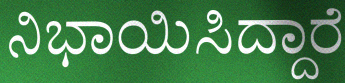
ನಿಭಾಯಿಸಿದ್ದಾರೆ